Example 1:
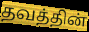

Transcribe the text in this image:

தவத்தின்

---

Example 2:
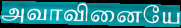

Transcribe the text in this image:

அவாவினையே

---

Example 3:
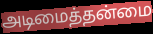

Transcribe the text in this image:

அடிமைத்தன்மை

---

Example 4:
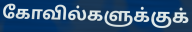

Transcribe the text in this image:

கோவில்களுக்குக்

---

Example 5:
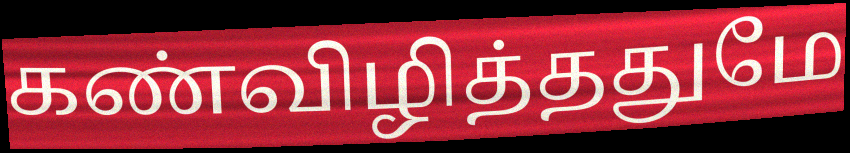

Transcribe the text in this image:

கண்விழித்ததுமே